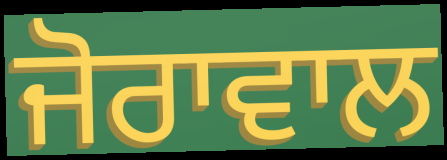
ਜੋਰਾਵਾਲ